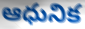
ఆధునిక